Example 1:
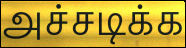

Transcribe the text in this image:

அச்சடிக்க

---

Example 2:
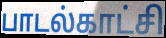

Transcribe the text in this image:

பாடல்காட்சி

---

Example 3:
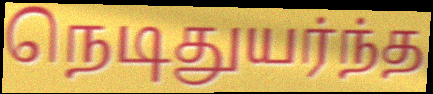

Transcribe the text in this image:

நெடிதுயர்ந்த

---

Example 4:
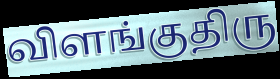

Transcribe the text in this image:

விளங்குதிரு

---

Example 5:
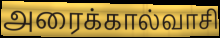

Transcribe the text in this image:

அரைக்கால்வாசி